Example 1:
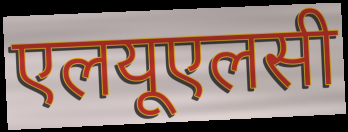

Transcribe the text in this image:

एलयूएलसी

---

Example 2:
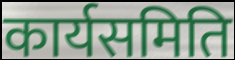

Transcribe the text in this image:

कार्यसमिति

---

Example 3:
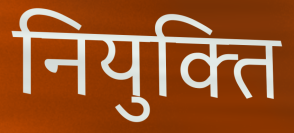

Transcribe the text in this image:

नियुक्‍ति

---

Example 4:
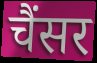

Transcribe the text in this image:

चैंसर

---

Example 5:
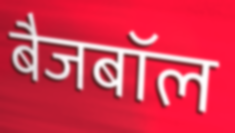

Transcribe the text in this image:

बैजबॉल